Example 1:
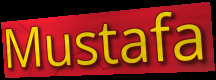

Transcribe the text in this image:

Mustafa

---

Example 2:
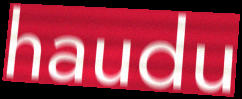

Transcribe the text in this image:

haudu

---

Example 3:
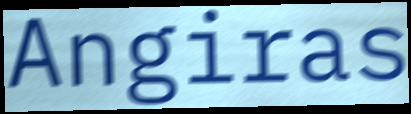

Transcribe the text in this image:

Angiras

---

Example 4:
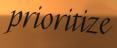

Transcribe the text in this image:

prioritize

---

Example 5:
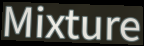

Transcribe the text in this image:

Mixture